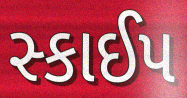
સ્કાઈપ